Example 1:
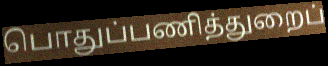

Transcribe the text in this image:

பொதுப்பணித்துறைப்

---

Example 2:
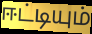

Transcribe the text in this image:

ஈட்டியும்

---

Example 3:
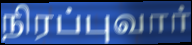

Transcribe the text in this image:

நிரப்புவார்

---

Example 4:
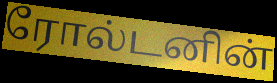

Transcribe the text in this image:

ரோல்டனின்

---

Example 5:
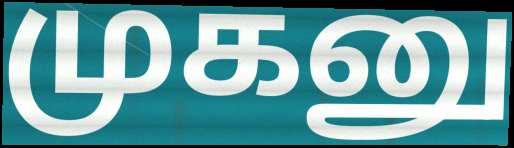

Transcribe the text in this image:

முகனு